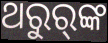
ଥରୁର୍‌ଙ୍କ